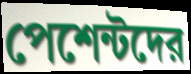
পেশেন্টদের